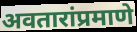
अवतारांप्रमाणे